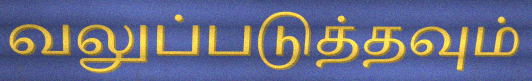
வலுப்படுத்தவும்